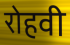
रोहवी